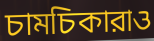
চামচিকারাও